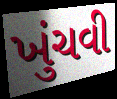
ખુંચવી